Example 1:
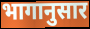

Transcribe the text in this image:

भागानुसार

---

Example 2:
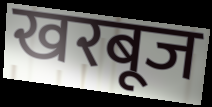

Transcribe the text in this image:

खरबूज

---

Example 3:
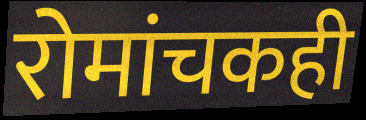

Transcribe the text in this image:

रोमांचकही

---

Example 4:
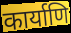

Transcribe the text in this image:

कार्याणि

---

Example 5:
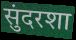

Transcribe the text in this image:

सुंदरशा